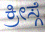
ಕ್ರೀಸ್ಗೆ